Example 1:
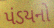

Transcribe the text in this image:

પંડયનો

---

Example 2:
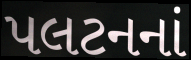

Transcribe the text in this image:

પલટનનાં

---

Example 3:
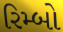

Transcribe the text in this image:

રિમ્બો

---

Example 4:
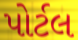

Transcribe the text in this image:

પોર્ટલ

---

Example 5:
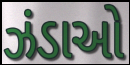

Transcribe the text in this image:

ઝંડાઓ